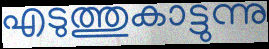
എടുത്തുകാട്ടുന്നു